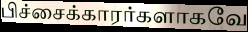
பிச்சைக்காரர்களாகவே